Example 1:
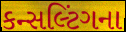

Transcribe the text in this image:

કન્સલ્ટિંગના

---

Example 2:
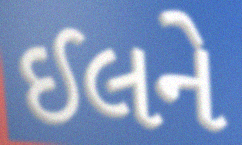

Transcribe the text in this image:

ઈલને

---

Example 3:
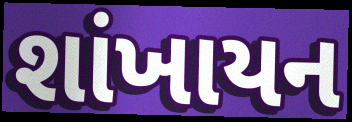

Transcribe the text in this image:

શાંખાયન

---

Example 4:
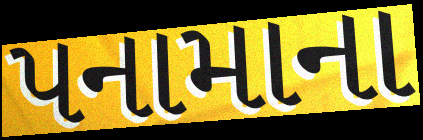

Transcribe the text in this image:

પનામાના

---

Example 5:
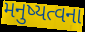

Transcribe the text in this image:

મનુષ્યત્વના